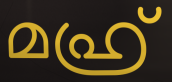
മഹ്ര്